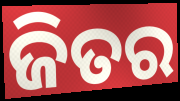
ଜିତର